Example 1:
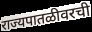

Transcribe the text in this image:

राज्यपातळीवरची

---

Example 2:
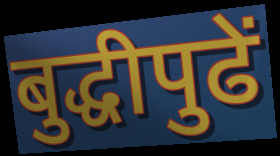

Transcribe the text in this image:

बुद्धीपुढें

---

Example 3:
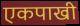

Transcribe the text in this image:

एकपाखी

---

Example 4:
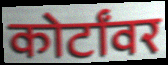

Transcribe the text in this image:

कोर्टांवर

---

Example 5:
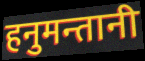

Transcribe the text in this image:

हनुमन्तानी